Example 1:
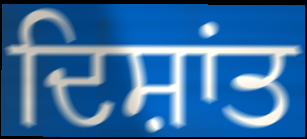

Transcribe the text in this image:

ਦਿਸ਼ਾਂਤ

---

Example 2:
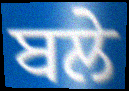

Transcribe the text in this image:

ਬਲੇ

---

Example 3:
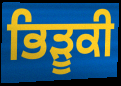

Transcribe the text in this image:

ਭਿੜੂਕੀ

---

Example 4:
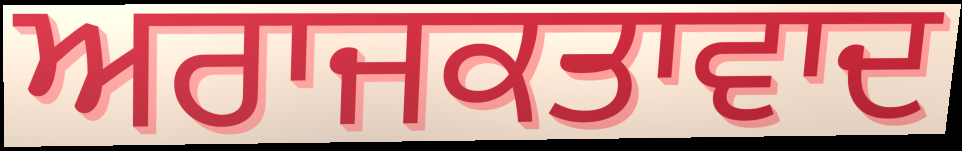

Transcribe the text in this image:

ਅਰਾਜਕਤਾਵਾਦ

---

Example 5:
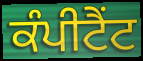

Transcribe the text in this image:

ਕੰਪੀਟੈਂਟ